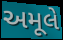
અમૂલે